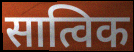
सात्विक